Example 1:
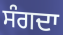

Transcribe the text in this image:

ਸੰਗਦਾ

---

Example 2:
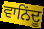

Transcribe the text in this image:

ਵਾਨਿਂਦੂ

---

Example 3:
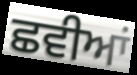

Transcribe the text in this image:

ਛਵੀਆਂ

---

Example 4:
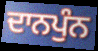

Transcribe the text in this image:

ਦਾਨਪੁੰਨ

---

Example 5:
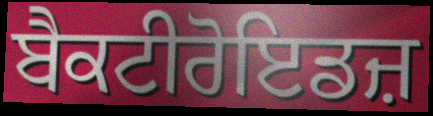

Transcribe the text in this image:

ਬੈਕਟੀਰੋਇਡਜ਼